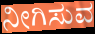
ನೀಗಿಸುವ